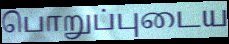
பொறுப்புடைய